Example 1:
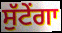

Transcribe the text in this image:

ਸੁੱਟੇਂਗਾ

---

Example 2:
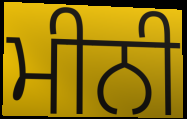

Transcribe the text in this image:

ਮੀਨੀ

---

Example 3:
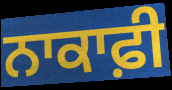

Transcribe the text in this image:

ਨਾਕਾਫ਼ੀ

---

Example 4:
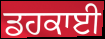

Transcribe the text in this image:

ਡਹਕਾਈ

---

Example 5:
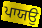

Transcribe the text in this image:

ਪਾਯਉ